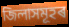
জিলাসমূহৰ